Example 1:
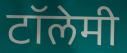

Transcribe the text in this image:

टॉलेमी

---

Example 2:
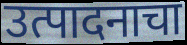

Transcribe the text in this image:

उत्पादनाचा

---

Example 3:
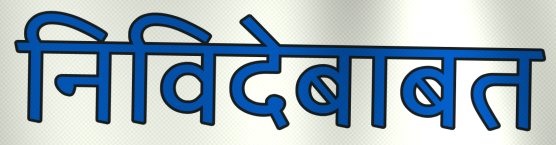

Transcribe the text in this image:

निविदेबाबत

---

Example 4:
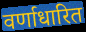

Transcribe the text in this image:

वर्णाधारित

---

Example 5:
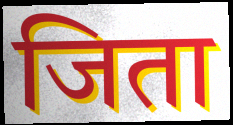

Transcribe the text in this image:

जिता